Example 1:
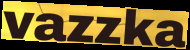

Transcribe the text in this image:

vazzka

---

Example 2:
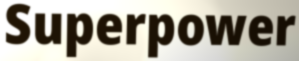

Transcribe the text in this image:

Superpower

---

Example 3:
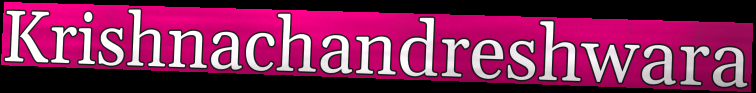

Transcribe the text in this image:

Krishnachandreshwara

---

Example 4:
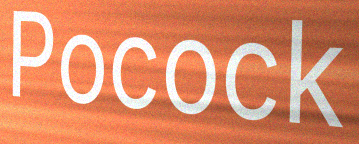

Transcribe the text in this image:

Pocock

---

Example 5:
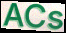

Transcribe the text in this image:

ACs